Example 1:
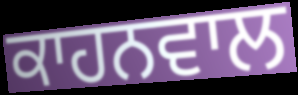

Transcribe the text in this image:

ਕਾਹਨਵਾਲ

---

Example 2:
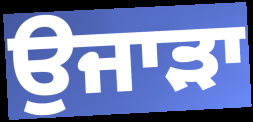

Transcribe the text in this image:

ਉਜਾੜਾ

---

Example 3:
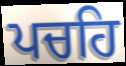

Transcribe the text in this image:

ਪਚਹਿ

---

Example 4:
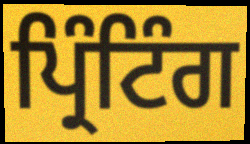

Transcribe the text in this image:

ਪ੍ਰਿੰਟਿੰਗ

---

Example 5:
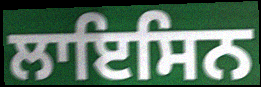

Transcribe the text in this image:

ਲਾਇਸਿਨ